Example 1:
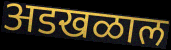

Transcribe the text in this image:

अडखळाल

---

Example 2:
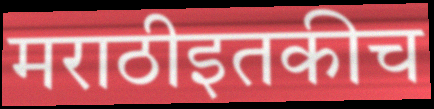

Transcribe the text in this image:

मराठीइतकीच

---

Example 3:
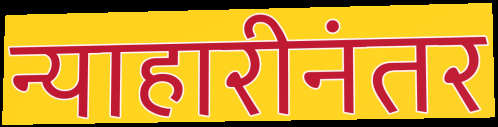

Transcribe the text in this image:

न्याहारीनंतर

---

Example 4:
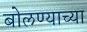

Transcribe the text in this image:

बोलण्याच्या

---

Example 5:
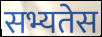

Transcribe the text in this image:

सभ्यतेस